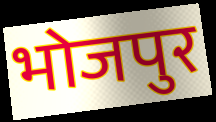
भोजपुर